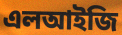
এলআইজি